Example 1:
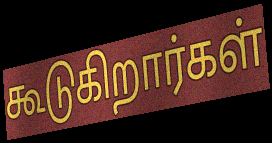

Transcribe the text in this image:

கூடுகிறார்கள்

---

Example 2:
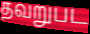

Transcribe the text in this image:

தவறுபட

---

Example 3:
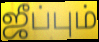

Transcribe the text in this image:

ஜீப்பும்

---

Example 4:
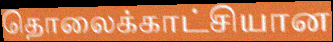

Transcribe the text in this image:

தொலைக்காட்சியான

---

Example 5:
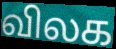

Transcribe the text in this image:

விலக